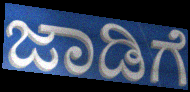
ಜಾಡಿಗೆ